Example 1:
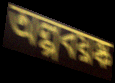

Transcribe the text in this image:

অল্পবয়ষ্ক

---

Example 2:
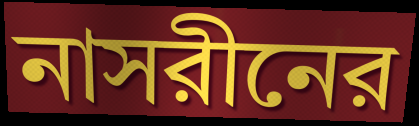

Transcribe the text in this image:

নাসরীনের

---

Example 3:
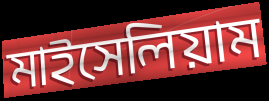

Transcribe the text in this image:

মাইসেলিয়াম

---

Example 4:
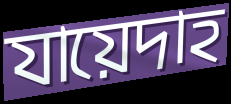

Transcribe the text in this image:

যায়েদাহ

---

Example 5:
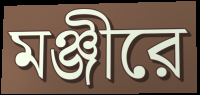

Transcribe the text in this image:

মঞ্জীরে